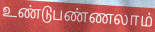
உண்டுபண்ணலாம்